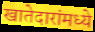
खातेदारांमध्ये